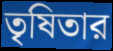
তৃষিতার